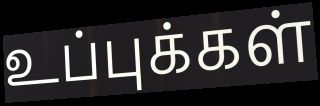
உப்புக்கள்